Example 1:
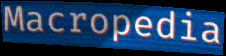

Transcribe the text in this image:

Macropedia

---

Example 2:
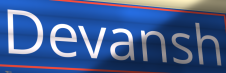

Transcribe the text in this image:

Devansh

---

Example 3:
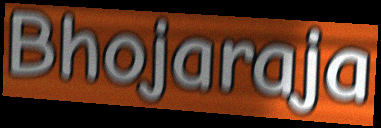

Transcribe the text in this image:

Bhojaraja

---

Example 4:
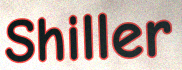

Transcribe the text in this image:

Shiller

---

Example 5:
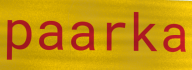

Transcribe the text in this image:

paarka